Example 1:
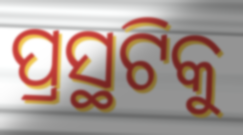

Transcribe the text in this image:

ପ୍ରସ୍ଥଟିକୁ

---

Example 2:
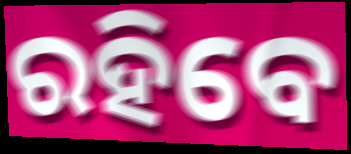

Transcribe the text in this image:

ରହିବେ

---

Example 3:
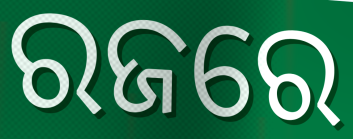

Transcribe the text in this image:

ରଜରେ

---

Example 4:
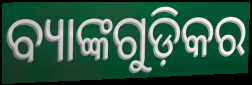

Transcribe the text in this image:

ବ୍ୟାଙ୍କଗୁଡ଼ିକର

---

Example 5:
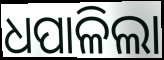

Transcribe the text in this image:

ଧପାଳିଲା